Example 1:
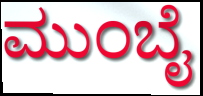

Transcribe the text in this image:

ಮುಂಬೈ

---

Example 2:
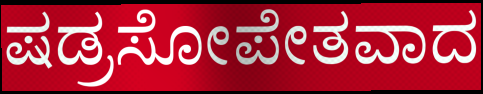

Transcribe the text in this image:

ಷಡ್ರಸೋಪೇತವಾದ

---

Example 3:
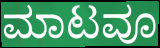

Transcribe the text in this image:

ಮಾಟವೂ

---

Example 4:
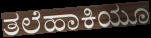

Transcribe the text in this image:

ತಲೆಹಾಕಿಯೂ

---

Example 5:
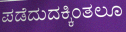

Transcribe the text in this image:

ಪಡೆದುದಕ್ಕಿಂತಲೂ